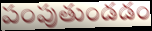
పంపుతుండడం